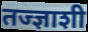
तज्ज्ञाशी